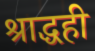
श्राद्धही